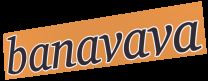
banavava